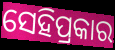
ସେହିପ୍ରକାର